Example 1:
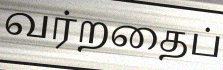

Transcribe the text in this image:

வர்றதைப்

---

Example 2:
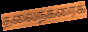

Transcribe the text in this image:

தலைநகரைக்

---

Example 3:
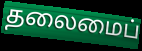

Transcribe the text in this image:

தலைமைப்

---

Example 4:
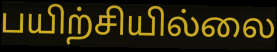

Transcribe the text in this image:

பயிற்சியில்லை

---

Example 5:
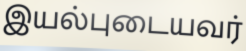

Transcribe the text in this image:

இயல்புடையவர்